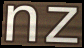
nz